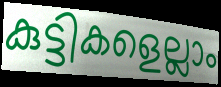
കുട്ടികളെല്ലാം